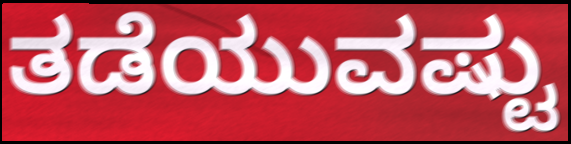
ತಡೆಯುವಷ್ಟು